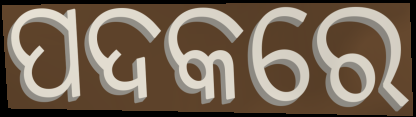
ପଦକରେ